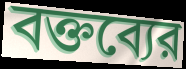
বক্তব্যের